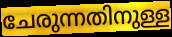
ചേരുന്നതിനുള്ള